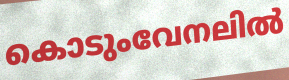
കൊടുംവേനലിൽ